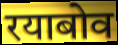
रयाबोव